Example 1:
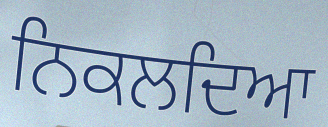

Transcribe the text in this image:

ਨਿਕਲਦਿਆ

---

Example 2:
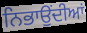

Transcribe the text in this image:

ਨਿਭਾਉਂਦੀਆਂ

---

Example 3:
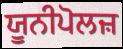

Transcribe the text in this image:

ਯੂਨੀਪੋਲਜ਼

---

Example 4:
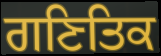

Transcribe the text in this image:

ਗਣਿਤਿਕ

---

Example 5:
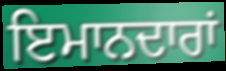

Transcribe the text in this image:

ਇਮਾਨਦਾਰਾਂ